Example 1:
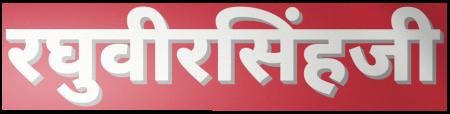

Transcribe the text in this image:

रघुवीरसिंहजी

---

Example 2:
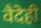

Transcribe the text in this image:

वैदेही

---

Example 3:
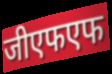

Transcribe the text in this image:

जीएफएफ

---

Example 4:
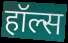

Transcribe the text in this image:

हॉल्स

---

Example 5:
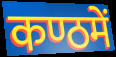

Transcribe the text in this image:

कण्ठमें